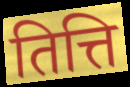
तित्ति